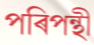
পৰিপন্থী